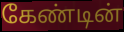
கேண்டின்